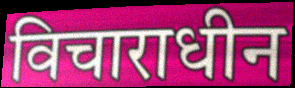
विचाराधीन